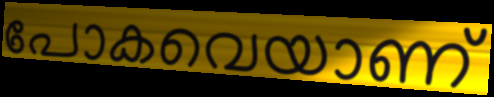
പോകവെയാണ്